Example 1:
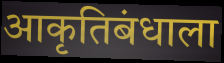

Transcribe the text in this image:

आकृतिबंधाला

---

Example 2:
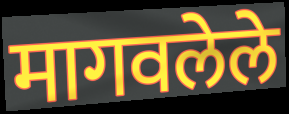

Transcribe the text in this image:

मागवलेले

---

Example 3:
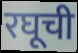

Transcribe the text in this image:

रघूची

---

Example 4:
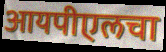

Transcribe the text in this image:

आयपीएलचा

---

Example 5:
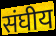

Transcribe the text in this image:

संघीय